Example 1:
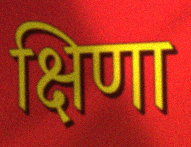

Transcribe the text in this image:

क्षिणा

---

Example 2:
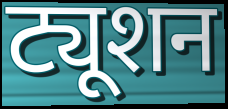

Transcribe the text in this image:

ट्यूशन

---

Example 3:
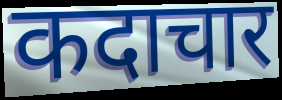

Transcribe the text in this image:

कदाचार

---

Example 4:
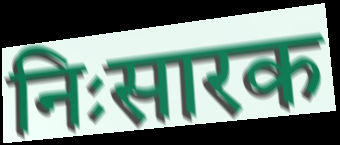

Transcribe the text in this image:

निःसारक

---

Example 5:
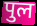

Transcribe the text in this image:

पुल